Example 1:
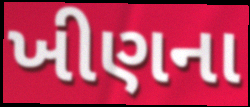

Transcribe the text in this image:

ખીણના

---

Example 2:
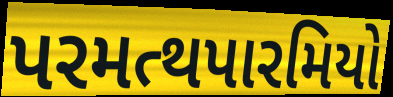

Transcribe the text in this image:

પરમત્થપારમિયો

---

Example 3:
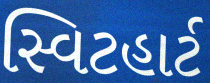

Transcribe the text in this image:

સ્વિટહાર્ટ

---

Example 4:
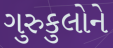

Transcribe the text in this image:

ગુરુકુલોને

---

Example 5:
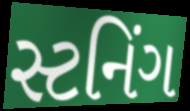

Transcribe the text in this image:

સ્ટનિંગ